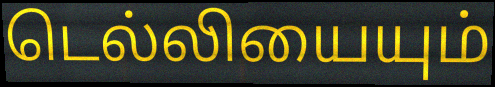
டெல்லியையும்